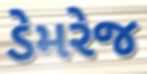
ડેમરેજ